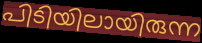
പിടിയിലായിരുന്ന